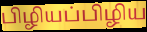
பிழியப்பிழிய